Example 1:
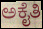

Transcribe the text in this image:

ಅಕೈತಿ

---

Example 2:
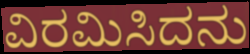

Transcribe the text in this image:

ವಿರಮಿಸಿದನು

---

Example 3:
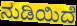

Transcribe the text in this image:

ನುಡಿಯಿದೆ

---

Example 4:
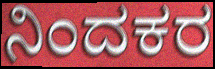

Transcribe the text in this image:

ನಿಂದಕರ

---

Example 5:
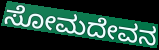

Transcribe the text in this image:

ಸೋಮದೇವನ